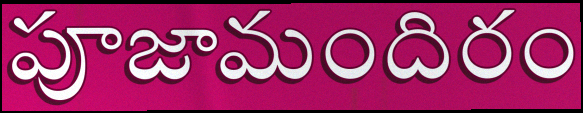
పూజామందిరం